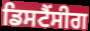
ਡਿਸਟੈਂਸੀਗ